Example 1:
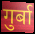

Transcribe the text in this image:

गुर्बा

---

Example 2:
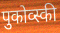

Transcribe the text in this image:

पुकोव्स्की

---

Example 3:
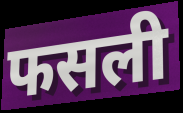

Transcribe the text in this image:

फसली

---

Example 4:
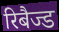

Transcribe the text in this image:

रिबैज्ड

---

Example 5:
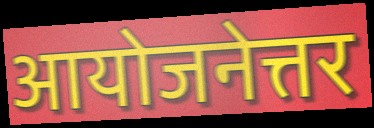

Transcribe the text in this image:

आयोजनेत्तर